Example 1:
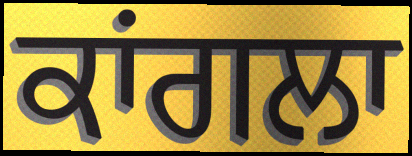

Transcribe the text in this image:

ਕਾਂਗਲਾ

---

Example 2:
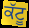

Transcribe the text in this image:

ਕੱਟੂ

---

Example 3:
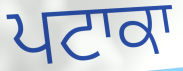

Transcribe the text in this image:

ਪਟਾਕਾ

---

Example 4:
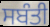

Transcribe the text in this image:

ਸਬੰਤੀ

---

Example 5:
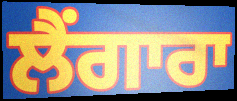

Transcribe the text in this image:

ਲੈਂਗਾਰਾ